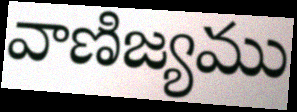
వాణిజ్యము